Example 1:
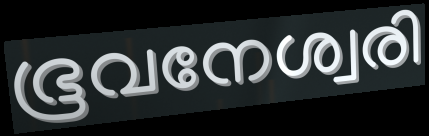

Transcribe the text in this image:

ഭൂവനേശ്വരി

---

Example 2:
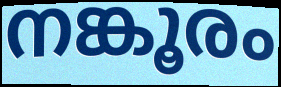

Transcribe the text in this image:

നങ്കൂരം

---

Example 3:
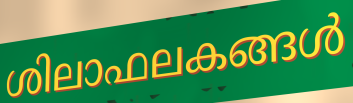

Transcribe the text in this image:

ശിലാഫലകങ്ങൾ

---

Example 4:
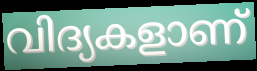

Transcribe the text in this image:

വിദ്യകളാണ്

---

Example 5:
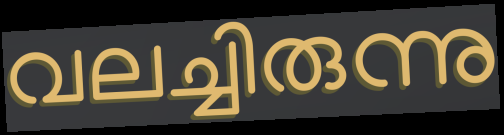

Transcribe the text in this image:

വലച്ചിരുന്നു